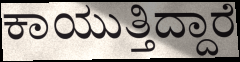
ಕಾಯುತ್ತಿದ್ದಾರೆ